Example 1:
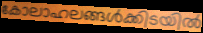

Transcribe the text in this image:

കോലാഹലങ്ങൾക്കിടയിൽ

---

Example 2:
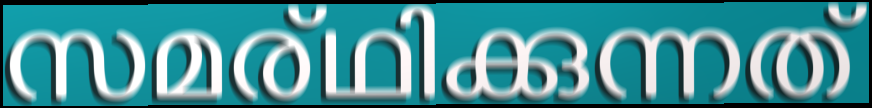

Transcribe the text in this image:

സമര്ഥിക്കുന്നത്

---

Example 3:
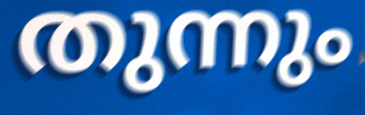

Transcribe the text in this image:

തുന്നും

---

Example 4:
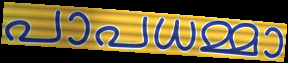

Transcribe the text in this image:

പാപധമ്മാ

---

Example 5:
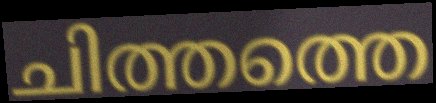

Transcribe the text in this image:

ചിത്തത്തെ